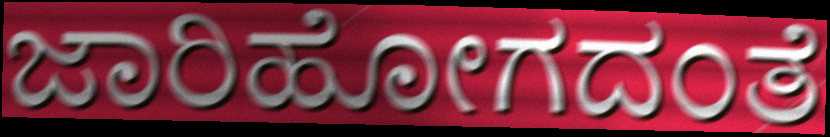
ಜಾರಿಹೋಗದಂತೆ